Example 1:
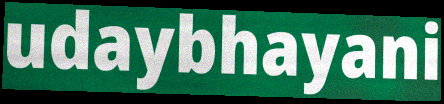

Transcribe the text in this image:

udaybhayani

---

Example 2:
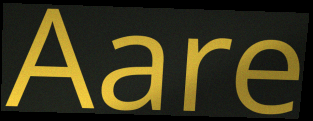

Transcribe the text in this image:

Aare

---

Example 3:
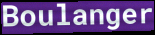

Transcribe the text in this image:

Boulanger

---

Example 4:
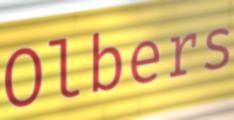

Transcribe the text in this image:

Olbers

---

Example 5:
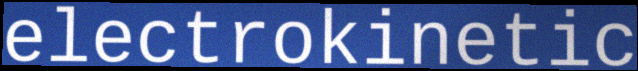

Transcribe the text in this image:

electrokinetic